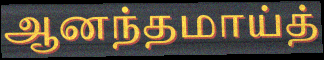
ஆனந்தமாய்த்